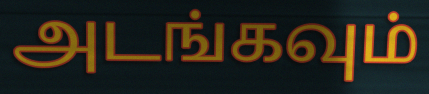
அடங்கவும்